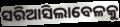
ସରିଆସିଲାବେଳକୁ